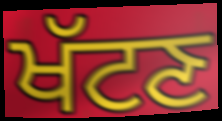
ਖੱਟਣ